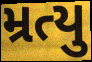
મ્રત્યુ